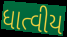
ધાત્વીય